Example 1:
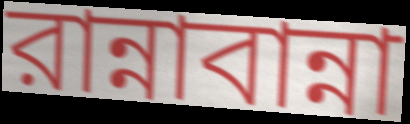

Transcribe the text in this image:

রান্নাবান্না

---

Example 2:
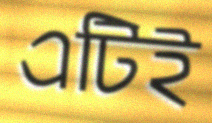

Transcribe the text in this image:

এটিই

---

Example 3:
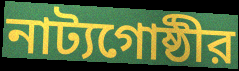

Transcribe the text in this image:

নাট্যগোষ্ঠীর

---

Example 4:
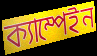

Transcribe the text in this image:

ক্যাম্পেইন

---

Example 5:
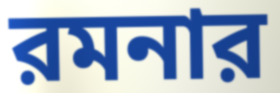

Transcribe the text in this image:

রমনার